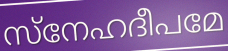
സ്നേഹദീപമേ